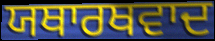
ਯਥਾਰਥਵਾਦ